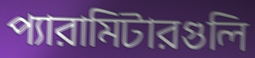
প্যারামিটারগুলি